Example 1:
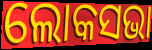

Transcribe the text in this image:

ଲୋକସଭା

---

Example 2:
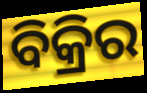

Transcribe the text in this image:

ବିକ୍ରିର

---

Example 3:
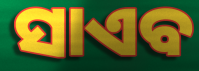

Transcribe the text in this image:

ସାଏବ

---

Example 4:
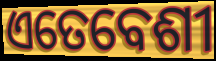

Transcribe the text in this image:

ଏତେବେଶୀ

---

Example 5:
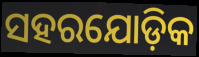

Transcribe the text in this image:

ସହରଯୋଡ଼ିକ